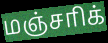
மஞ்சரிக்